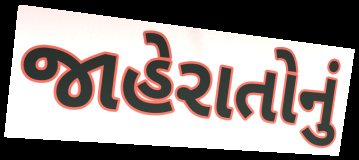
જાહેરાતોનું